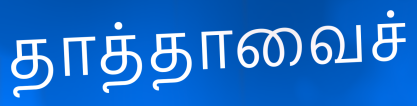
தாத்தாவைச்